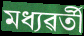
মধ্যৱৰ্তী